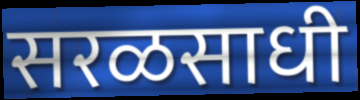
सरळसाधी